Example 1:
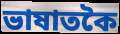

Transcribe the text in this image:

ভাষাতকৈ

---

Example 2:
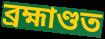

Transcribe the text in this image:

ব্ৰহ্মাণ্ডত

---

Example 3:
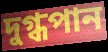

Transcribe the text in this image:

দুগ্ধপান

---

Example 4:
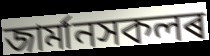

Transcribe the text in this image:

জাৰ্মানসকলৰ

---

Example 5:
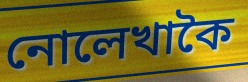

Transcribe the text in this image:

নোলেখাকৈ